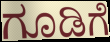
ಗೂಡಿಗೆ